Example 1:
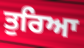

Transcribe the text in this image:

ਤੁਰਿਆ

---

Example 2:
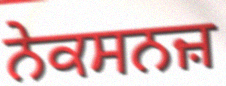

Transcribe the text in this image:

ਨੇਕਸਨਜ਼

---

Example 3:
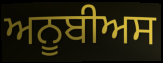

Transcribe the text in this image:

ਅਨੂਬੀਅਸ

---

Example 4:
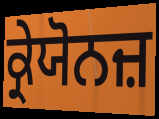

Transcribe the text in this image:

ਕ੍ਰੇਯੋਨਜ਼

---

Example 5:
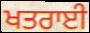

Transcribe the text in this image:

ਖਤਰਾਈ